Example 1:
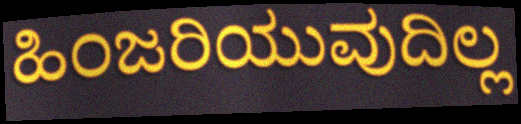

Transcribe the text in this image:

ಹಿಂಜರಿಯುವುದಿಲ್ಲ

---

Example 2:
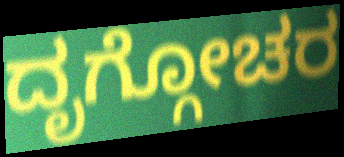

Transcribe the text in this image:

ದೃಗ್ಗೋಚರ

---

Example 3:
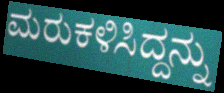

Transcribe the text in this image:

ಮರುಕಳಿಸಿದ್ದನ್ನು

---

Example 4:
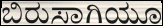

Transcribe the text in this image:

ಬಿರುಸಾಗಿಯೂ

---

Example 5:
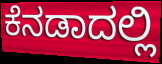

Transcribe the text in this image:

ಕೆನಡಾದಲ್ಲಿ